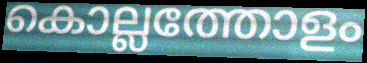
കൊല്ലത്തോളം